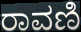
ರಾವಣಿ